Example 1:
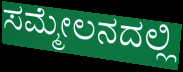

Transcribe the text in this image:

ಸಮ್ಮೇಲನದಲ್ಲಿ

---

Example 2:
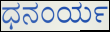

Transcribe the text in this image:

ಧನಂರ್ಯ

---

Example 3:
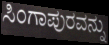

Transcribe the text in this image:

ಸಿಂಗಾಪುರವನ್ನು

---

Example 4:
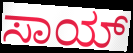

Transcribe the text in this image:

ಸಾಯ್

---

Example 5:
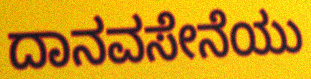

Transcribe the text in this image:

ದಾನವಸೇನೆಯು